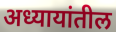
अध्यायांतील